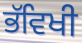
ਭੱਵਿਖੀ